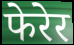
फेरेर